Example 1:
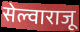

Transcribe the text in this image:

सेल्वाराजू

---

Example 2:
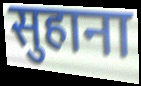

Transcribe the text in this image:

सुहाना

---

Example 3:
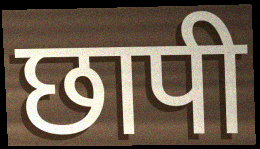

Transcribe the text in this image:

छापी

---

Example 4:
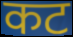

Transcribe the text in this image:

कट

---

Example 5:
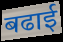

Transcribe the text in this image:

बढाई